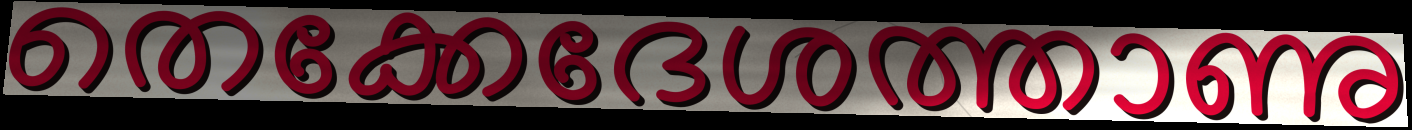
തെക്കേദേശത്താണു